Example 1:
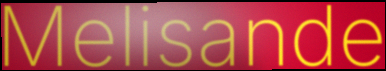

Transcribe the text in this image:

Melisande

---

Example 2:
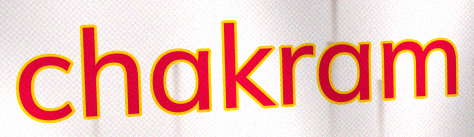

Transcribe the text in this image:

chakram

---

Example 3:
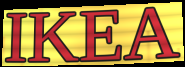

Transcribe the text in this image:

IKEA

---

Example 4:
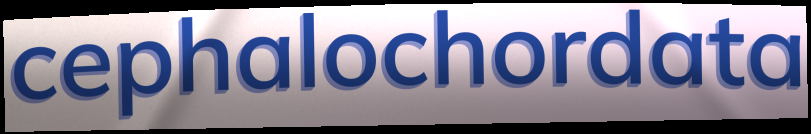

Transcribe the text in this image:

cephalochordata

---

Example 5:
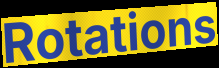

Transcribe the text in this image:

Rotations